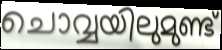
ചൊവ്വയിലുമുണ്ട്